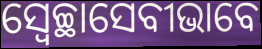
ସ୍ୱେଚ୍ଛାସେବୀଭାବେ